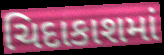
ચિદાકાશમાં